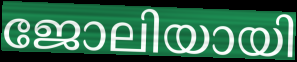
ജോലിയായി